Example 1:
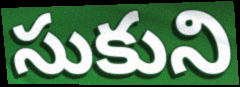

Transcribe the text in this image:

సుకుని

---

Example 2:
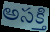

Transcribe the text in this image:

అసక్తి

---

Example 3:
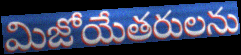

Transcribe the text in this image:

మిజోయేతరులను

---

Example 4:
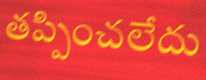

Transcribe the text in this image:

తప్పించలేదు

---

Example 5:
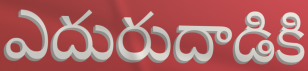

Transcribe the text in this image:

ఎదురుదాడికి